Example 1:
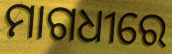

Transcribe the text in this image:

ମାଗଧୀରେ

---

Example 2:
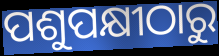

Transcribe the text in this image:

ପଶୁପକ୍ଷୀଠାରୁ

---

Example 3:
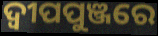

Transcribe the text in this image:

ଦ୍ୱୀପପୁଞ୍ଜରେ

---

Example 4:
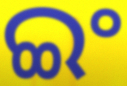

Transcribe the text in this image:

ଇଂ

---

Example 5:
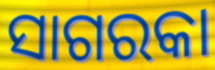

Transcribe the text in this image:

ସାଗରକା